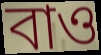
বাও